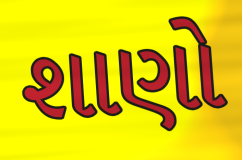
શાણો